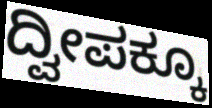
ದ್ವೀಪಕ್ಕೂ